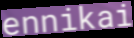
ennikai